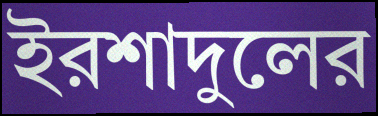
ইরশাদুলের